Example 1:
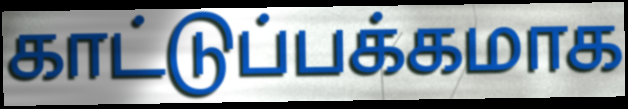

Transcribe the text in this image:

காட்டுப்பக்கமாக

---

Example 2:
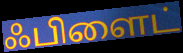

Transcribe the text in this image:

ஃபிளைட்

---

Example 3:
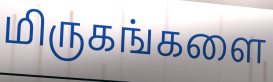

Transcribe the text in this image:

மிருகங்களை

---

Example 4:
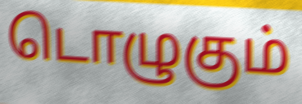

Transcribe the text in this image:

டொழுகும்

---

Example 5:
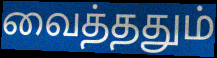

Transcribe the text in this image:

வைத்ததும்